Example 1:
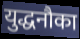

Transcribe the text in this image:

युद्धनौका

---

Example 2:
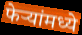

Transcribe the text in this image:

फेऱ्यांमध्ये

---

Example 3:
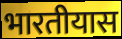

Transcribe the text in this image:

भारतीयास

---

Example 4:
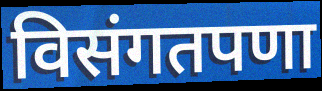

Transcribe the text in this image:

विसंगतपणा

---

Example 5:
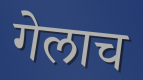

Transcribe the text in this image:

गेलाच